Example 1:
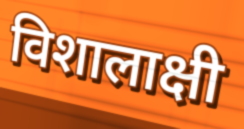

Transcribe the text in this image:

विशालाक्षी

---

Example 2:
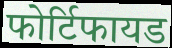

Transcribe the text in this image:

फोर्टिफायड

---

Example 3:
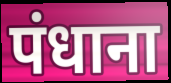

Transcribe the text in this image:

पंधाना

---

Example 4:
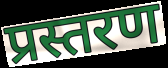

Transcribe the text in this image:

प्रस्तरण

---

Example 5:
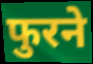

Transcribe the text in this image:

फुरने